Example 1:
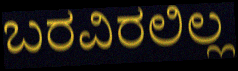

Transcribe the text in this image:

ಬರವಿರಲಿಲ್ಲ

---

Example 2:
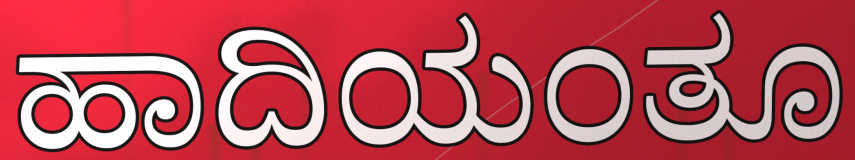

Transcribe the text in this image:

ಹಾದಿಯಂತೂ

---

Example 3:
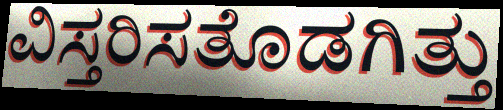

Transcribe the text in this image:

ವಿಸ್ತರಿಸತೊಡಗಿತ್ತು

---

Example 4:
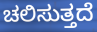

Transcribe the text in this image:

ಚಲಿಸುತ್ತದೆ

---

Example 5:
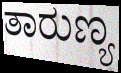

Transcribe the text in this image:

ತಾರುಣ್ಯ